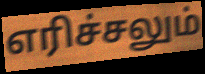
எரிச்சலும்